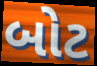
બોટ